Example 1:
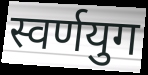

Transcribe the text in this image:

स्वर्णयुग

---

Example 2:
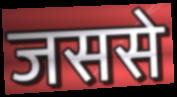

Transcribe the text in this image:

जससे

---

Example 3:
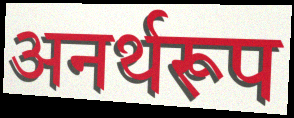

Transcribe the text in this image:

अनर्थरूप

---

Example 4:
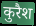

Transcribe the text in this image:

कुरैश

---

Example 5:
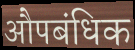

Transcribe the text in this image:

औपबंधिक